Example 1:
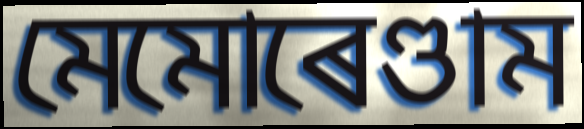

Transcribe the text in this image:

মেমোৰেণ্ডাম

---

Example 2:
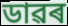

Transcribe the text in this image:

ডাৱৰ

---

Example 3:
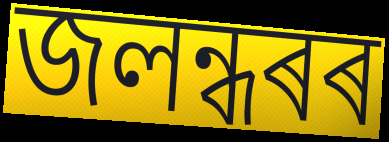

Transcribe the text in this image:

জলন্ধৰৰ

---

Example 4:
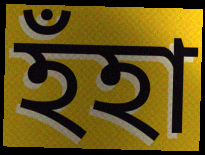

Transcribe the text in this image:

হঁহা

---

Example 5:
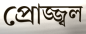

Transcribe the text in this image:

প্ৰোজ্জ্বল